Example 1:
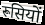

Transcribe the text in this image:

रूसियों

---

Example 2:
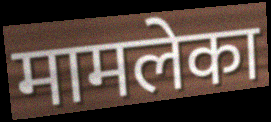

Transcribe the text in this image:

मामलेका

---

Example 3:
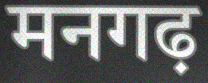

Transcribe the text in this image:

मनगढ़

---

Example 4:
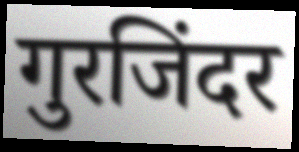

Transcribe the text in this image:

गुरजिंदर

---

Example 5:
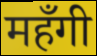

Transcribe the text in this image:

महँगी